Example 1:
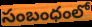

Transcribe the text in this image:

సంబంధంలో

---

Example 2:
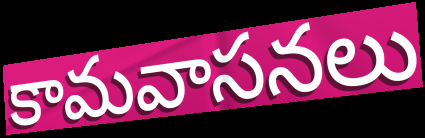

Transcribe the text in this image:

కామవాసనలు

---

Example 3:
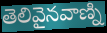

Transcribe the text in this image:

తెలివైనవాణ్ని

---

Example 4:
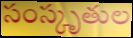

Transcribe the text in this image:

సంస్కృతుల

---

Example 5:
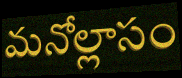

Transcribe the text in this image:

మనోల్లాసం